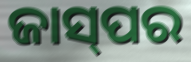
ଜାସ୍‌ପର